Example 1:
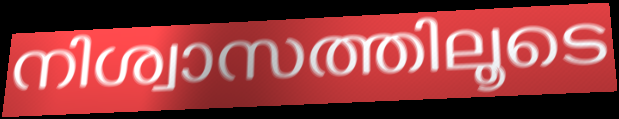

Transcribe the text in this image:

നിശ്വാസത്തിലൂടെ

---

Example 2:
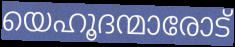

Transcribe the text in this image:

യെഹൂദന്മാരോട്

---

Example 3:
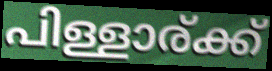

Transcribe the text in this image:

പിള്ളാര്ക്ക്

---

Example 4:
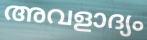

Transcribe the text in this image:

അവളാദ്യം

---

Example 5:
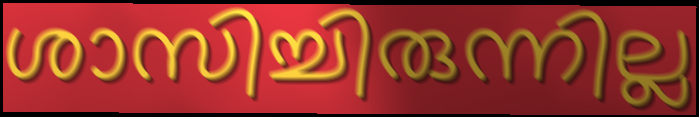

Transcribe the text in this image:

ശാസിച്ചിരുന്നില്ല